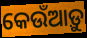
କେଉଁଆଡ଼ୁ